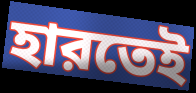
হারতেই